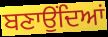
ਬਣਾਉਂਦਿਆਂ